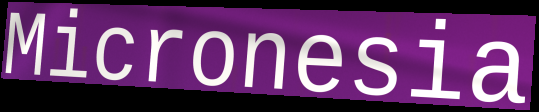
Micronesia